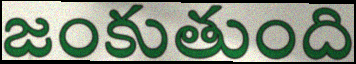
జంకుతుంది